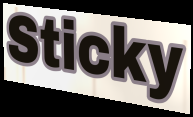
Sticky